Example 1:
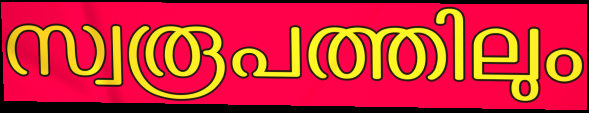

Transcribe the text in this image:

സ്വരൂപത്തിലും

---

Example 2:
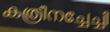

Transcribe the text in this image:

കത്രീനച്ചേച്ചി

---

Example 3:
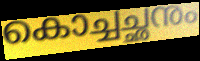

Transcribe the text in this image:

കൊച്ചച്ഛനും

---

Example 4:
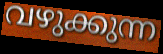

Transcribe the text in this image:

വഴുക്കുന്ന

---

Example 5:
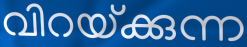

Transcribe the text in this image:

വിറയ്‌ക്കുന്ന